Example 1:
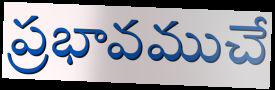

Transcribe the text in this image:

ప్రభావముచే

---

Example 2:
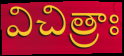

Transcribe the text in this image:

విచిత్రాః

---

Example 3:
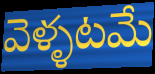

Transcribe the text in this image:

వెళ్ళటమే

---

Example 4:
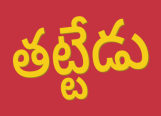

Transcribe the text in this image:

తట్టేడు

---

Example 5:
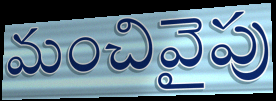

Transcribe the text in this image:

మంచివైపు